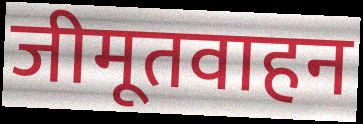
जीमूतवाहन